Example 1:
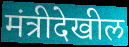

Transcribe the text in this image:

मंत्रीदेखील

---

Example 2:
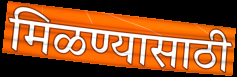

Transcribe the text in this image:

मिळण्‍यासाठी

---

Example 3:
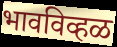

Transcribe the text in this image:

भावविव्हळ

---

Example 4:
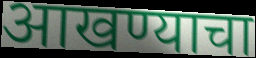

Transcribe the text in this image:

आखण्याचा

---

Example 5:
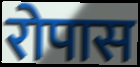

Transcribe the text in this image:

रोपास